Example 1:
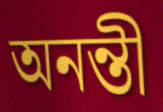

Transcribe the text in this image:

অনন্তী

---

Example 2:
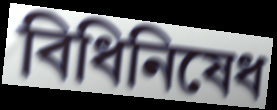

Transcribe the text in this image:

বিধিনিষেধ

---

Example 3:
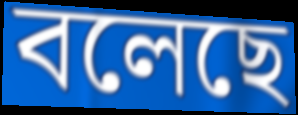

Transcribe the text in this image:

বলেছে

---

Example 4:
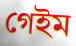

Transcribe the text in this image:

গেইম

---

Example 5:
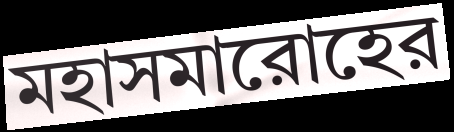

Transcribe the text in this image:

মহাসমারোহের